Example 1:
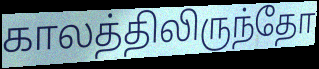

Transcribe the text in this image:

காலத்திலிருந்தோ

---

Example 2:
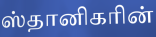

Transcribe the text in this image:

ஸ்தானிகரின்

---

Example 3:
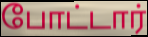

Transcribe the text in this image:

போட்டார்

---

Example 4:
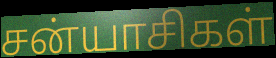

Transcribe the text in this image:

சன்யாசிகள்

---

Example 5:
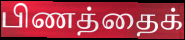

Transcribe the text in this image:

பிணத்தைக்